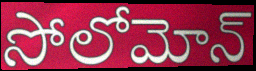
సోలోమోన్